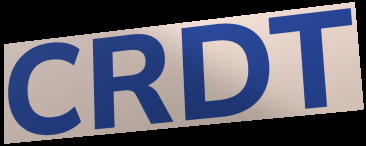
CRDT